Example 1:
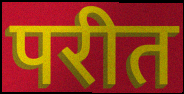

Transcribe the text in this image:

परीत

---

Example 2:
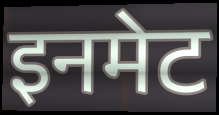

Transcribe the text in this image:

इनमेट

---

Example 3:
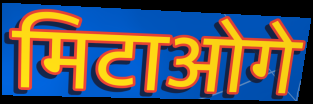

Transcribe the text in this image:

मिटाओगे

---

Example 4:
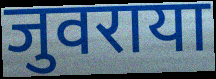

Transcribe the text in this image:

जुवराया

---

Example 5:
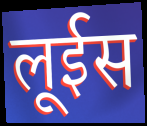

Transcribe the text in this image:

लूईस